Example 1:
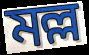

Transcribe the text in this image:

মল্ল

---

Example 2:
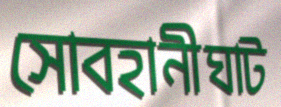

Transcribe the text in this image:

সোবহানীঘাট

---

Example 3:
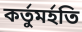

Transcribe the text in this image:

কর্তুমর্হতি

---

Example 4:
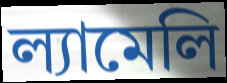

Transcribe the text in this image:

ল্যামেলি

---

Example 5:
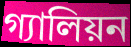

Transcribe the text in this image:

গ্যালিয়ন